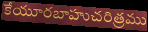
కేయూరబాహుచరిత్రము